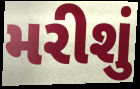
મરીશું